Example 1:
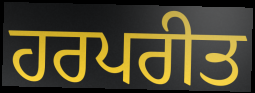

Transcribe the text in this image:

ਹਰਪਰੀਤ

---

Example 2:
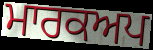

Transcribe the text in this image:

ਮਾਰਕਅਪ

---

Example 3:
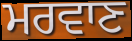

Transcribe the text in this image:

ਮਰਵਾਣ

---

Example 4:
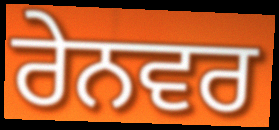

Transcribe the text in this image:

ਰੇਨਵਰ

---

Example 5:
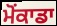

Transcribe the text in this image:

ਮੋਂਕਾਡਾ